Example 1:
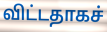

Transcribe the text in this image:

விட்டதாகச்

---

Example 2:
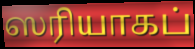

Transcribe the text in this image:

ஸரியாகப்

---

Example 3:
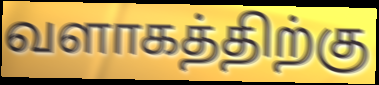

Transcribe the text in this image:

வளாகத்திற்கு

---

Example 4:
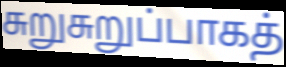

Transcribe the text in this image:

சுறுசுறுப்பாகத்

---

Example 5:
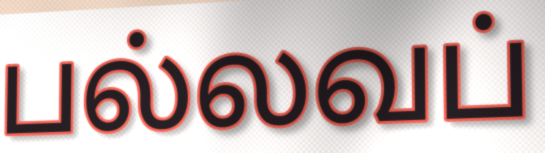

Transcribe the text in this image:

பல்லவப்